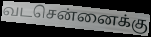
வடசென்னைக்கு